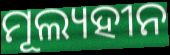
ମୂଲ୍ୟହୀନ